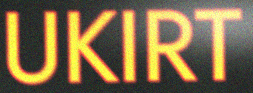
UKIRT